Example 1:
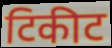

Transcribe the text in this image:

टिकीट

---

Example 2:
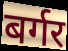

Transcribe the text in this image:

बर्गर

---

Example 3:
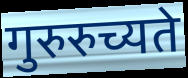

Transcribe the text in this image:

गुरुरुच्यते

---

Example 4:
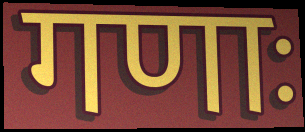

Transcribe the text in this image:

गणाः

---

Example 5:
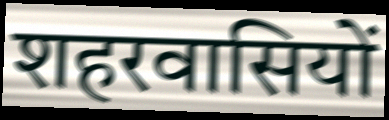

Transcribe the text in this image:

शहरवासियों